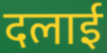
दलाई